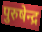
पुरुषेन्द्र